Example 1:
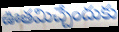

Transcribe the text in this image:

ఊతమిచ్చేందుకు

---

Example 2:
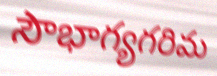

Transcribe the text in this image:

సౌభాగ్యగరిమ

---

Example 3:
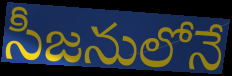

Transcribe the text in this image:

సీజనులోనే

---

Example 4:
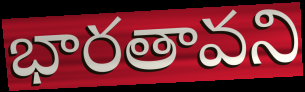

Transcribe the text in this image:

భారతావని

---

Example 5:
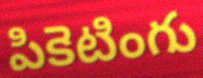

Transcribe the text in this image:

పికెటింగు